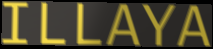
ILLAYA